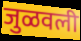
जुळवली